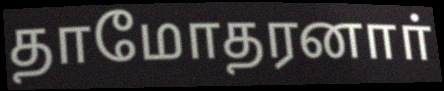
தாமோதரனார்